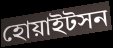
হোয়াইটসন